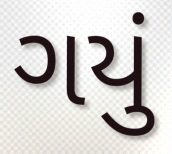
ગયું